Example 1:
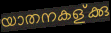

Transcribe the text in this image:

യാതനകള്ക്കു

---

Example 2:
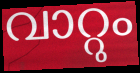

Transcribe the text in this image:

വാറ്റും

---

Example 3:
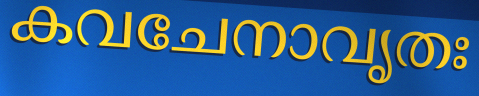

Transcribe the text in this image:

കവചേനാവൃതഃ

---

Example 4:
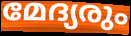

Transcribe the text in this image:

മേദ്യരും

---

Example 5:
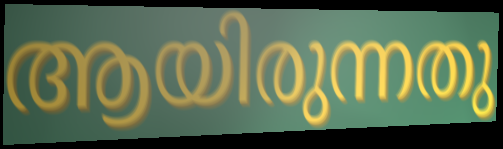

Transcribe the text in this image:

ആയിരുന്നതു